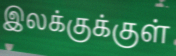
இலக்குக்குள்